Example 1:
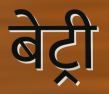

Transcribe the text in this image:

बेट्री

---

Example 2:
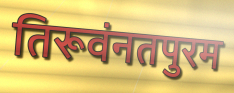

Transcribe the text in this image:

तिरूवंनतपुरम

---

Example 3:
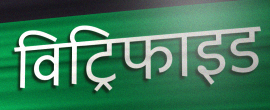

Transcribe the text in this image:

विट्रिफाइड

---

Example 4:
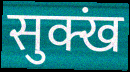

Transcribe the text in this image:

सुक्खं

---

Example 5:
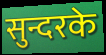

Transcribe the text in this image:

सुन्दरके